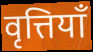
वृत्तियाँ